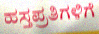
ಹಸ್ತಪ್ರತಿಗಳಿಗೆ